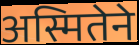
अस्मितेने